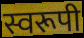
स्वरूपी